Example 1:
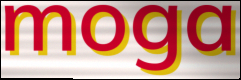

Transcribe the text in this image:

moga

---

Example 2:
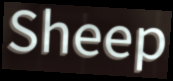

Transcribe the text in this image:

Sheep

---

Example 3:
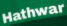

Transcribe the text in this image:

Hathwar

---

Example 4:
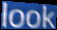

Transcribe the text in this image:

look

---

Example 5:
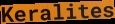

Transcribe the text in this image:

Keralites